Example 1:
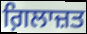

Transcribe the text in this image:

ਗ਼ਿਲਾਜ਼ਤ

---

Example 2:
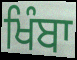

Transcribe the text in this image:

ਖਿੰਬਾ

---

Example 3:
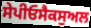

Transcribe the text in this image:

ਸੇਪੀਓਸੈਕਸੁਅਲ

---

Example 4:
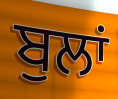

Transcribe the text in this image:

ਬੁਲਾਂ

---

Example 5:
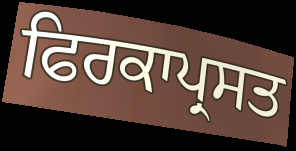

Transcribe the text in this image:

ਫਿਰਕਾਪ੍ਰਸਤ